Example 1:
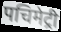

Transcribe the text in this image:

पचिमेट्री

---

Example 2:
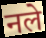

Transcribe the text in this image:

नले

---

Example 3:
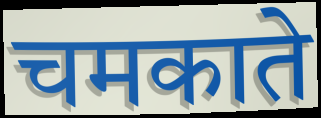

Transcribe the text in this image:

चमकाते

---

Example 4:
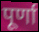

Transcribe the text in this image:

पूर्णा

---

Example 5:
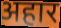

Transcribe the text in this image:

अहार